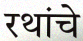
रथांचे